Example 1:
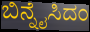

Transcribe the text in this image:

ಬಿನ್ನೈಸಿದಂ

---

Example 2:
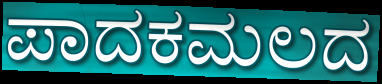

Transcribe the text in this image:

ಪಾದಕಮಲದ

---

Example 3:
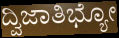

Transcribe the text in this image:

ದ್ವಿಜಾತಿಭ್ಯೋ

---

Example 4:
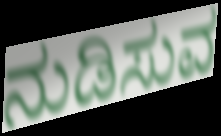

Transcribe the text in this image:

ನುಡಿಸುವ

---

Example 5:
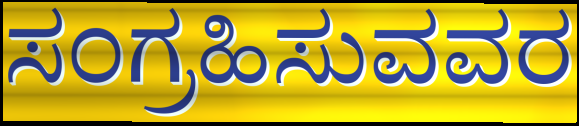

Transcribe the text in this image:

ಸಂಗ್ರಹಿಸುವವರ